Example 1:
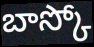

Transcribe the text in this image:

బాస్కో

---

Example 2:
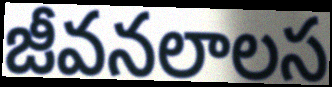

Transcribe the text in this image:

జీవనలాలస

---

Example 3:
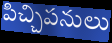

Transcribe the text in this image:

పిచ్చిపనులు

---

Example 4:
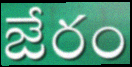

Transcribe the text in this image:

జేరం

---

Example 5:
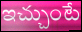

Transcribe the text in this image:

ఇచ్చుంటే